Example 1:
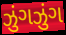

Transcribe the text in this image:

ઝુંગઝુંગ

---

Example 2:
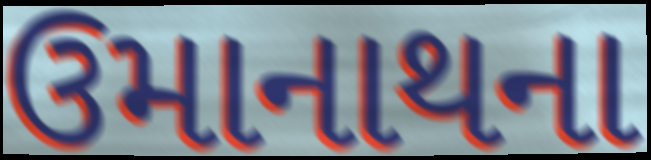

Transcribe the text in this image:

ઉમાનાથના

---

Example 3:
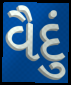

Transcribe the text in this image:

વૈદું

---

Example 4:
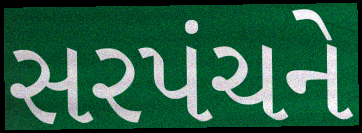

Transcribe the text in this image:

સરપંચને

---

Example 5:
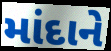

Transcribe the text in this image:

માંદાને